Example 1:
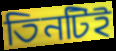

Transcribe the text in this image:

তিনটিই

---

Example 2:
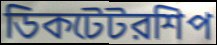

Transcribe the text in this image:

ডিকটেটরশিপ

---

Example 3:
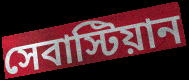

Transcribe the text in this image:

সেবাস্টিয়ান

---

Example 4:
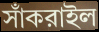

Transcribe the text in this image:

সাঁকরাইল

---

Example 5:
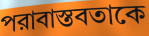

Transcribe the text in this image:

পরাবাস্তবতাকে